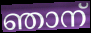
ഞാന്